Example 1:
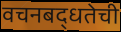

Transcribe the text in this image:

वचनबद्धतेची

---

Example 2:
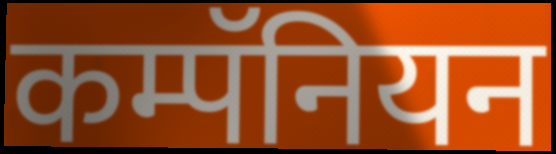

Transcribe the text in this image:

कम्पॅनियन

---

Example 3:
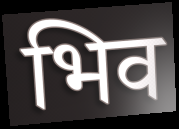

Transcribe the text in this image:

भिव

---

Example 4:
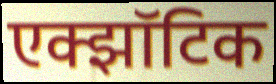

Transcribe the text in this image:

एक्झॉटिक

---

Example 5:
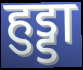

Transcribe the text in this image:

हुड्डा